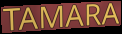
TAMARA